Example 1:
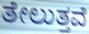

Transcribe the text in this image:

ತೇಲುತ್ತವೆ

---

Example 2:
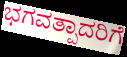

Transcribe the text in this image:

ಭಗವತ್ಪಾದರಿಗೆ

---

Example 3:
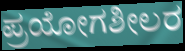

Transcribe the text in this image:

ಪ್ರಯೋಗಶೀಲರ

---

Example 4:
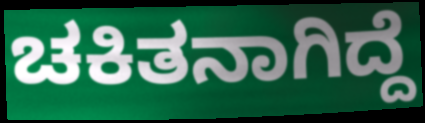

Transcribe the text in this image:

ಚಕಿತನಾಗಿದ್ದೆ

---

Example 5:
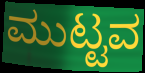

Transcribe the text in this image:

ಮುಟ್ಟವ